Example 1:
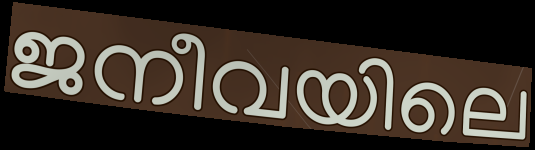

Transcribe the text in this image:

ജനീവയിലെ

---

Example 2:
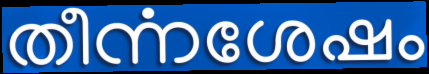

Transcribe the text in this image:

തീൎന്നശേഷം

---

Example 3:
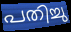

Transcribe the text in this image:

പതിച്ചു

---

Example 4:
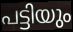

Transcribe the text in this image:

പട്ടിയും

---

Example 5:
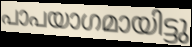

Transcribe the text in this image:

പാപയാഗമായിട്ടു